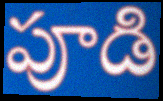
పూడి